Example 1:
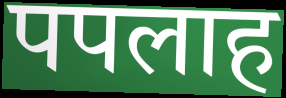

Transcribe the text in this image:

पपलाह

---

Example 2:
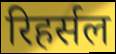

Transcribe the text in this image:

रिहर्सल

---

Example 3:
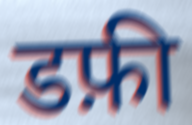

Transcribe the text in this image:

डफ़ी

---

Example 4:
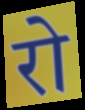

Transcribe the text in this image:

रो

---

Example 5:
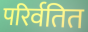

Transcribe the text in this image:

परिर्वतित